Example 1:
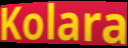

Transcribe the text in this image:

Kolara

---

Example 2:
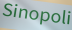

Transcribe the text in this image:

Sinopoli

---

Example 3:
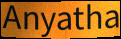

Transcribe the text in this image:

Anyatha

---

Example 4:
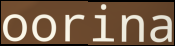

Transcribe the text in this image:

oorina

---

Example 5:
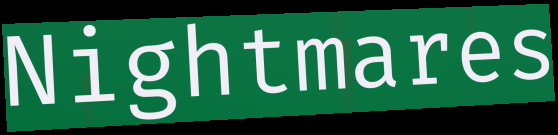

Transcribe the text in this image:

Nightmares